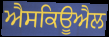
ਐਸਕਿਊਐਲ